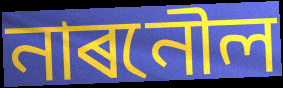
নাৰনৌল